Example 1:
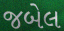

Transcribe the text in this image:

જબેલ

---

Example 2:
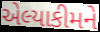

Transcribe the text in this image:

એલ્યાકીમને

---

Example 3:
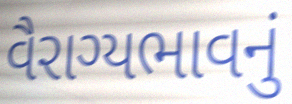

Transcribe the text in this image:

વૈરાગ્યભાવનું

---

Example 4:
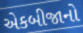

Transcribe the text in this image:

એકબીજાનો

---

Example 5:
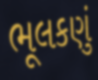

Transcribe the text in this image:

ભૂલકણું